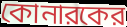
কোনারকের